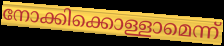
നോക്കിക്കൊള്ളാമെന്ന്